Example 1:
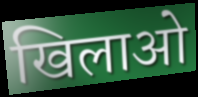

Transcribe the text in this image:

खिलाओ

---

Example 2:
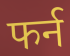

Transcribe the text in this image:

फर्न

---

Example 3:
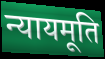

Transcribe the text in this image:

न्यायमूति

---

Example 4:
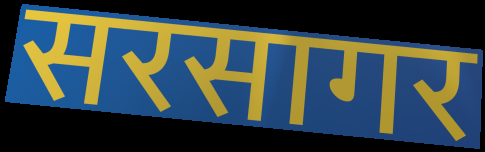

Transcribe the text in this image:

सरसागर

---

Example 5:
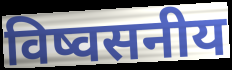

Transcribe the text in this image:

विष्वसनीय